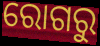
ରୋଗରୁ